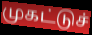
முகட்டுச்